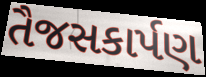
તૈજસકાર્પણ